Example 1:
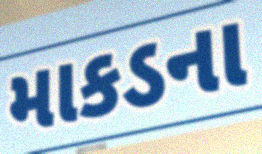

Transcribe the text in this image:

માકડના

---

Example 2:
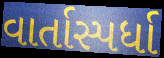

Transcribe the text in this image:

વાર્તાસ્પર્ધા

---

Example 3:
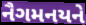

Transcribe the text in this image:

નૈગમનયને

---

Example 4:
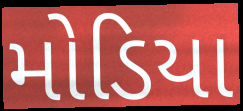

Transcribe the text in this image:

મોડિયા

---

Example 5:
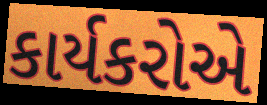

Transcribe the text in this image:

કાર્યકરોએ